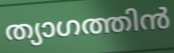
ത്യാഗത്തിൻ